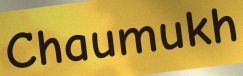
Chaumukh